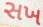
સખ